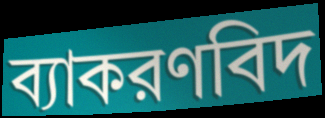
ব্যাকরণবিদ